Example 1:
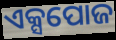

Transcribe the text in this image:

ଏକ୍ସପୋଜ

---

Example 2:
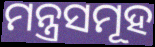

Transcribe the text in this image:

ମନ୍ତ୍ରସମୂହ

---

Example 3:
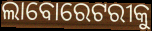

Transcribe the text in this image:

ଲାବୋରେଟରୀକୁ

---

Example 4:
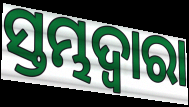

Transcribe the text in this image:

ସ୍ତମ୍ଭଦ୍ୱାରା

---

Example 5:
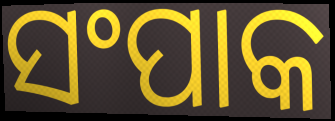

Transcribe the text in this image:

ସଂପାକ